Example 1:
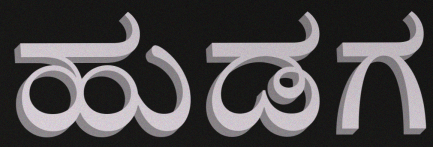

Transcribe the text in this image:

ಹುಡಗ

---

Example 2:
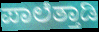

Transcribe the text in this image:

ಪಾಲೆತ್ತಾಡಿ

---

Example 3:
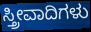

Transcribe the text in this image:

ಸ್ತ್ರೀವಾದಿಗಳು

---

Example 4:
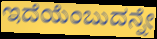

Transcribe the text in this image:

ಇದೆಯೆಂಬುದನ್ನೇ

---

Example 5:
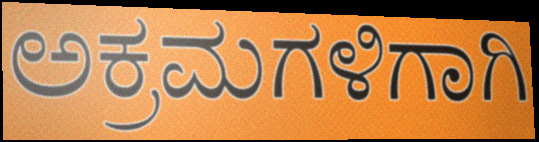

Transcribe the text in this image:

ಅಕ್ರಮಗಳಿಗಾಗಿ